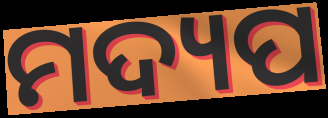
ମଦ୍ୟପ